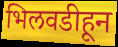
भिलवडीहून